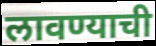
लावण्याची